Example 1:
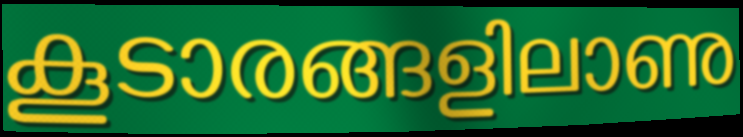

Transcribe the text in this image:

കൂടാരങ്ങളിലാണു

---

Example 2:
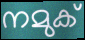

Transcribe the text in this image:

നമുക്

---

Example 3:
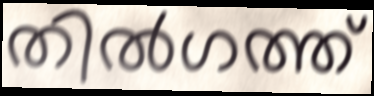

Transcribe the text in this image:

തിൽഗത്ത്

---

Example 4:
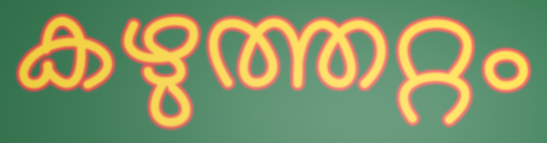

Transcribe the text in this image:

കഴുത്തറ്റം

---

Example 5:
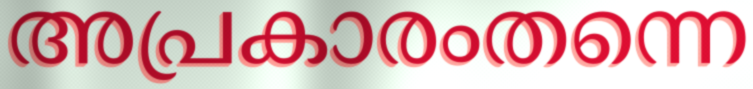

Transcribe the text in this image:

അപ്രകാരംതന്നെ